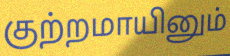
குற்றமாயினும்